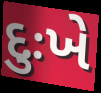
દુઃખે